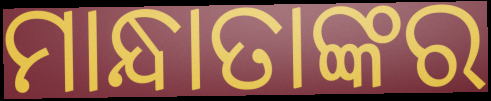
ମାନ୍ଧାତାଙ୍କର